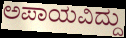
ಅಪಾಯವಿದ್ದು